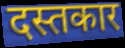
दस्‍तकार